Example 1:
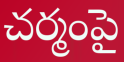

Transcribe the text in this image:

చర్మంపై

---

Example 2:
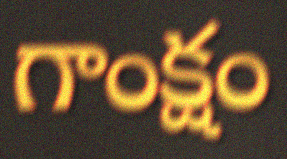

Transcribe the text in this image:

గాంక్షం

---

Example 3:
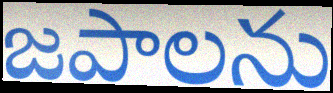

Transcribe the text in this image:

జపాలను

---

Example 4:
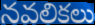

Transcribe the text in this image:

నవలికలు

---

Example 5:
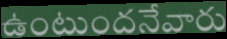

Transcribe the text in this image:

ఉంటుందనేవారు